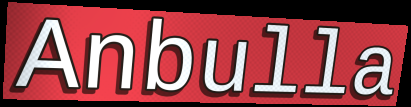
Anbulla